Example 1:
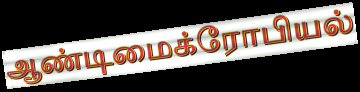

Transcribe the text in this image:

ஆண்டிமைக்ரோபியல்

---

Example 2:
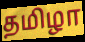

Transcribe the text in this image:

தமிழா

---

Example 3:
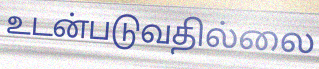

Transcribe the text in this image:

உடன்படுவதில்லை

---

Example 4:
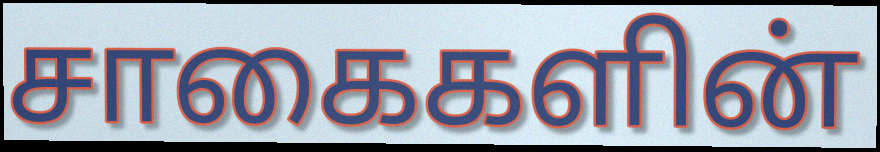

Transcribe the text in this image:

சாகைகளின்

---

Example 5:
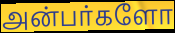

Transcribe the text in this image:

அன்பர்களோ